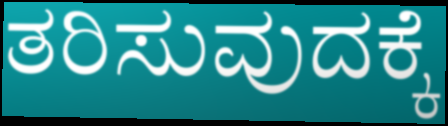
ತರಿಸುವುದಕ್ಕೆ